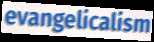
evangelicalism